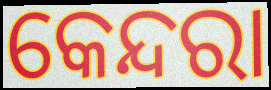
କେନ୍ଦରା